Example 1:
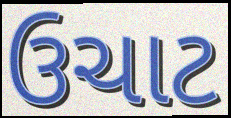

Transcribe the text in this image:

ઉચાટ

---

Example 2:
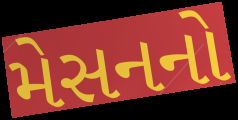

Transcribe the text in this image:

મેસનનો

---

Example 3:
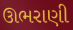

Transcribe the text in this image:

ઊભરાણી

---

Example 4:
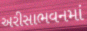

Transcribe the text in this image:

અરીસાભવનમાં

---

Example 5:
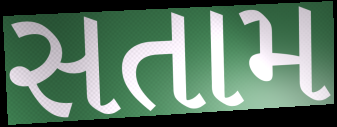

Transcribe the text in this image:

સતામ